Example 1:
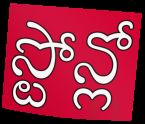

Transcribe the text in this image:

స్టోన్లో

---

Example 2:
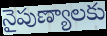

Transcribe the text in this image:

నైపుణ్యాలకు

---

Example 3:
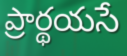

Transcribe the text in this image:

ప్రార్థయసే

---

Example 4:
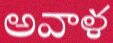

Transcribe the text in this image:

అవాళ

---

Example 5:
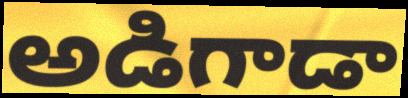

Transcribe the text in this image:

అడిగాడా